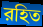
রহিত